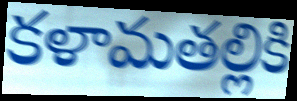
కళామతల్లికి